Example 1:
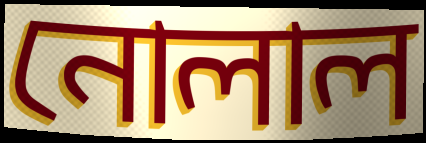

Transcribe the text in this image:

নোলাল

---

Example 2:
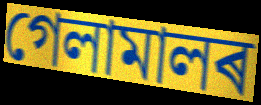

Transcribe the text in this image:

গেলামালৰ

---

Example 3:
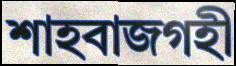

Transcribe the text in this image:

শাহবাজগহী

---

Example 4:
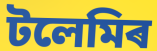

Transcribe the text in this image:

টলেমিৰ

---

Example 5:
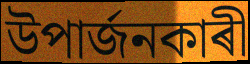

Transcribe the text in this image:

উপাৰ্জনকাৰী